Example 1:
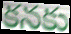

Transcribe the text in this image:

కనకు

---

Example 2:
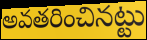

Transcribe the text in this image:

అవతరించినట్టు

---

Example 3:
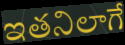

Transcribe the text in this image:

ఇతనిలాగే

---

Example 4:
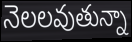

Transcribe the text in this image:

నెలలవుతున్నా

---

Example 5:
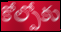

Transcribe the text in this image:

కోల్పోకు